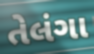
તેલંગા